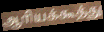
ஆரியக்கூத்து